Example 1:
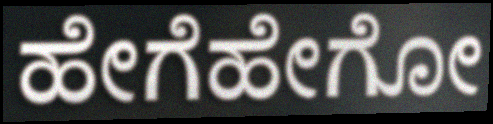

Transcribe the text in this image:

ಹೇಗೆಹೇಗೋ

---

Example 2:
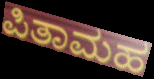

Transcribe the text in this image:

ಪಿತಾಮಹ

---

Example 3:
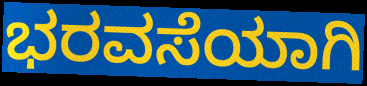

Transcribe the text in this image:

ಭರವಸೆಯಾಗಿ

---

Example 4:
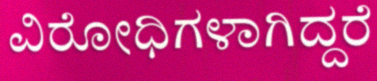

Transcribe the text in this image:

ವಿರೋಧಿಗಳಾಗಿದ್ದರೆ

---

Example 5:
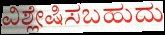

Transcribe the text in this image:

ವಿಶ್ಲೇಷಿಸಬಹುದು